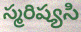
స్మరిష్యసి